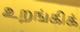
உறங்கிக்